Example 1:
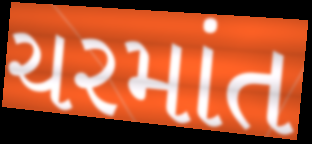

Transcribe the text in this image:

ચરમાંત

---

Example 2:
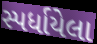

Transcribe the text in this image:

સ્પર્ધાયેલા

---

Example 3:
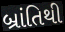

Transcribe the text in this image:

બ્રાંતિથી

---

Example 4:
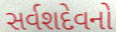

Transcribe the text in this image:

સર્વશદેવનો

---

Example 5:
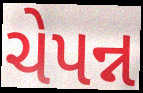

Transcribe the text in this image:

ચેપન્ન